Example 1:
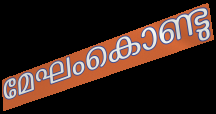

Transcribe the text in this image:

മേഘംകൊണ്ടു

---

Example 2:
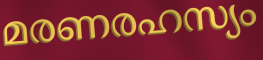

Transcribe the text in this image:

മരണരഹസ്യം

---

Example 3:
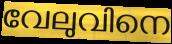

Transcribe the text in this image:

വേലുവിനെ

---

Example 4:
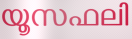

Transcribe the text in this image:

യൂസഫലി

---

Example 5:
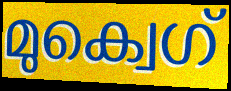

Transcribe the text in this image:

മുക്വെഗ്